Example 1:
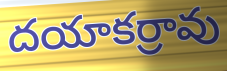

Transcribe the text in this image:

దయాకర్రావు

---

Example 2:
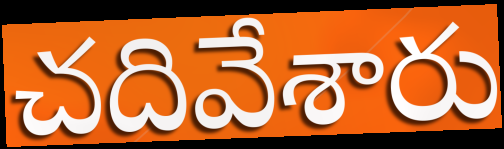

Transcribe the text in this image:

చదివేశారు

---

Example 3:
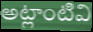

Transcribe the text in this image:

అట్లాంటివి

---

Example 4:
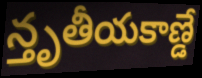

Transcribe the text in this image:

న్తృతీయకాణ్డే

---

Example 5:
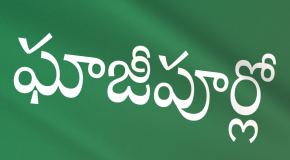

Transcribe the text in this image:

ఘాజీపూర్లో